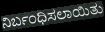
ನಿರ್ಬಂಧಿಸಲಾಯಿತು